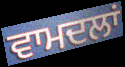
ਵਾਮਦਲਾਂ